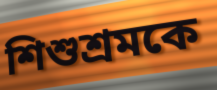
শিশুশ্রমকে